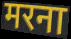
मरना